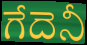
గేదెనీ